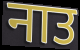
नाउ